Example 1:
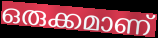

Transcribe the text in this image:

ഒരുക്കമാണ്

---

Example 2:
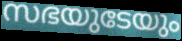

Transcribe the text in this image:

സഭയുടേയും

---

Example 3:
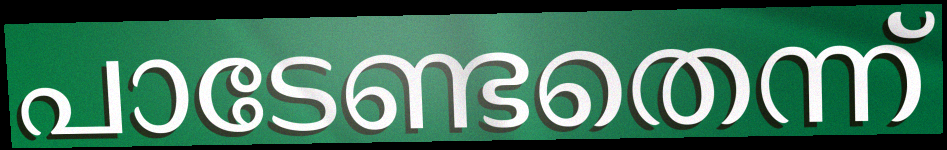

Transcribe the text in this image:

പാടേണ്ടതെന്ന്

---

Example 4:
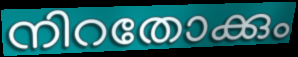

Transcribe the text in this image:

നിറതോക്കും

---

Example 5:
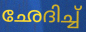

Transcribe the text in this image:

ഛേദിച്ച്